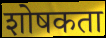
शोषकता